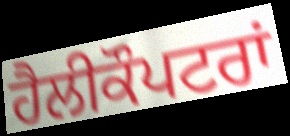
ਹੈਲੀਕੌਪਟਰਾਂ